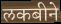
लकबीने